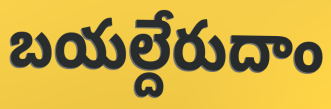
బయల్దేరుదాం